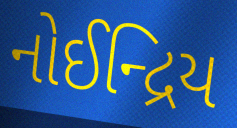
નોઈન્દ્રિય